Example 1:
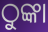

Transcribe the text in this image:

ଠୁଙ୍କା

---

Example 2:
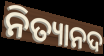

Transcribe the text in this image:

ନିତ୍ୟାନଦ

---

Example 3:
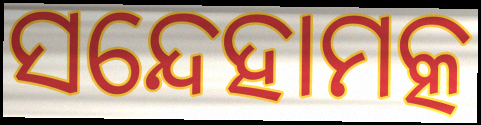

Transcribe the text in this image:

ସନ୍ଦେହାମତ୍କ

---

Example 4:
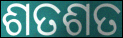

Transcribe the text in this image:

ଶତଶତ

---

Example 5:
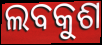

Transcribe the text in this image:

ଲବକୁଶ